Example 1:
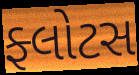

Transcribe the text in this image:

ફ્લોટસ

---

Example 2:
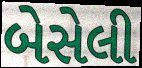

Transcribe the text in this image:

બેસેલી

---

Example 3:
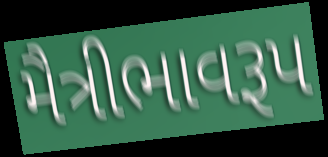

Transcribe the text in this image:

મૈત્રીભાવરૂપ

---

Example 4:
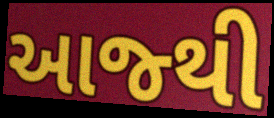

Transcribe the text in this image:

આજ્થી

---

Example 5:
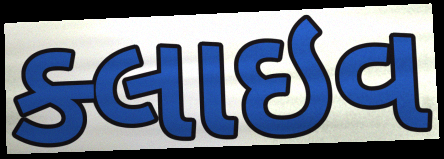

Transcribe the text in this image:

ક્લાઇવ